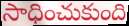
సాధించుకుంది